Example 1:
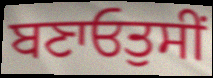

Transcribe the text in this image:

ਬਣਾਓਤੁਸੀਂ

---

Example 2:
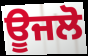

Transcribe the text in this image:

ਊਜਲੋ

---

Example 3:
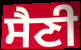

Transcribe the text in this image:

ਸੈਣੀ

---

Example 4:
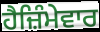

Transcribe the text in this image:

ਹੈਜ਼ਿੰਮੇਵਾਰ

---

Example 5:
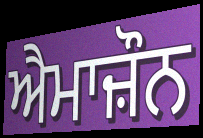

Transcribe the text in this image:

ਐਮਾਜ਼ੌਨ